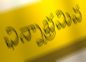
ఛిన్నాభ్రమివ